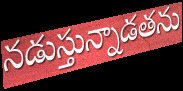
నడుస్తున్నాడతను